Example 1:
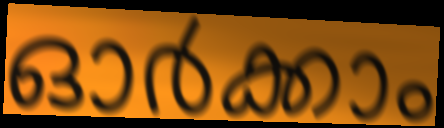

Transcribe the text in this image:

ഓർക്കാം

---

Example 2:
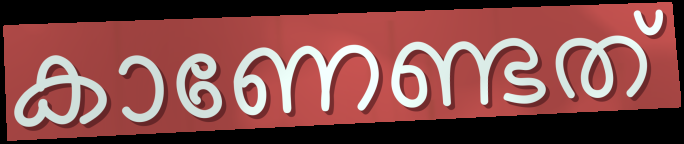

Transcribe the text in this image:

കാണേണ്ടത്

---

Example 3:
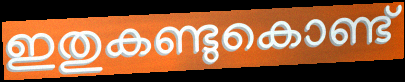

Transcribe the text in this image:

ഇതുകണ്ടുകൊണ്ട്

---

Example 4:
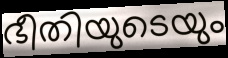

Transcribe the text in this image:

ഭീതിയുടെയും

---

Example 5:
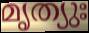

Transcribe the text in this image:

മൃത്യുഃ